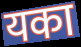
यका